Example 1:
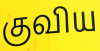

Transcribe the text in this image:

குவிய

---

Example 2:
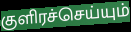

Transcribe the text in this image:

குளிரச்செய்யும்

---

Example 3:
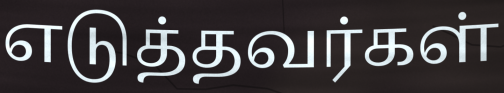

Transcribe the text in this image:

எடுத்தவர்கள்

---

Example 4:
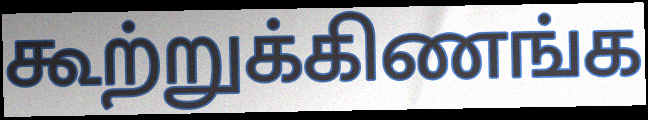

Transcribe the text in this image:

கூற்றுக்கிணங்க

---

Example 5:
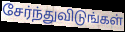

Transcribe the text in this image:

சேர்ந்துவிடுங்கள்